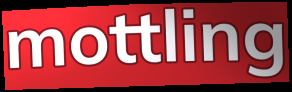
mottling